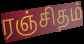
ரஞ்சிதம்